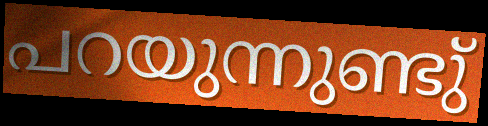
പറയുന്നുണ്ടു്